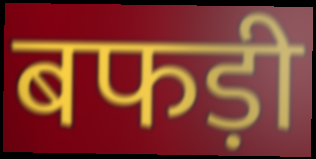
बफड़ी